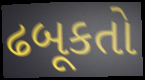
ઢબૂકતો